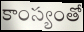
కాంస్యంతో